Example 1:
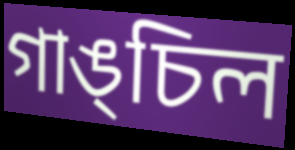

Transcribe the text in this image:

গাঙ্‌চিল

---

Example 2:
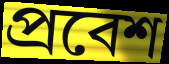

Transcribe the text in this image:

প্রবেশ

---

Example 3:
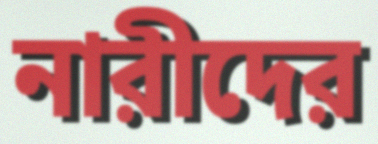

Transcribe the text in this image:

নারীদের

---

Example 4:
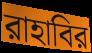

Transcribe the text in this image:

রাহাবির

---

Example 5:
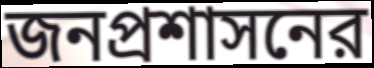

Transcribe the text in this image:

জনপ্রশাসনের